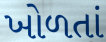
ખોળતાં